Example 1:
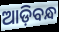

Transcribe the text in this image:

ଆଡ଼ିବନ୍ଧ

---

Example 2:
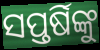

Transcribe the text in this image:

ସପ୍ତର୍ଷିଙ୍କୁ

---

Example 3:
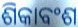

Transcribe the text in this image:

ଶିକାବଂଶ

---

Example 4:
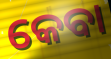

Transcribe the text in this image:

କେବା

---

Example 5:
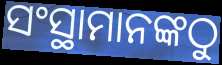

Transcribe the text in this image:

ସଂସ୍ଥାମାନଙ୍କଠୁ